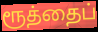
ரூத்தைப்